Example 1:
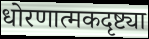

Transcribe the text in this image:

धोरणात्मकदृष्ट्या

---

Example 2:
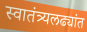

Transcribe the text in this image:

स्वातंत्र्यलढ्यांत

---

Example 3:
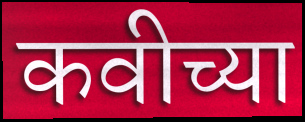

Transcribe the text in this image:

कवीच्या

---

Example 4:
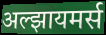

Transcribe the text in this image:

अल्झायमर्स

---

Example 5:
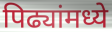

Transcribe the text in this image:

पिढ्यांमध्ये